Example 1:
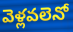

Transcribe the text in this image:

వెళ్లవలెనో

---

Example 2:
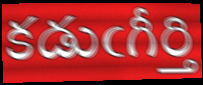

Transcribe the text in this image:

కడుఁగీర్తి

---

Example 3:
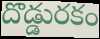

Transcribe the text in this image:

దొడ్డురకం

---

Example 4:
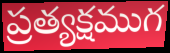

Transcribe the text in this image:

ప్రత్యక్షముగ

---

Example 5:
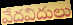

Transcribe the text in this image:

వేదవిదులు